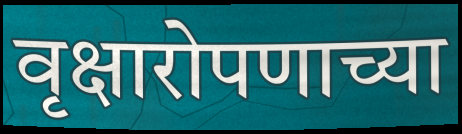
वृक्षारोपणाच्या